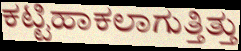
ಕಟ್ಟಿಹಾಕಲಾಗುತ್ತಿತ್ತು